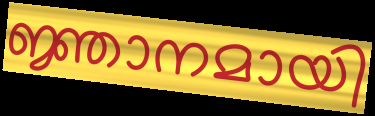
ജ്ഞാനമായി